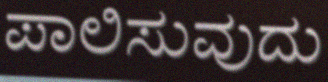
ಪಾಲಿಸುವುದು